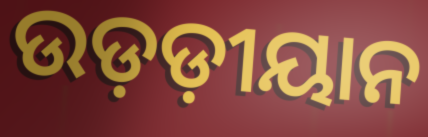
ଉଡ଼ଡ଼ୀୟାନ